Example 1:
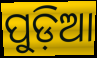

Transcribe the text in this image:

ପୁଡ଼ିଆ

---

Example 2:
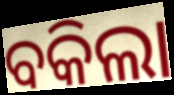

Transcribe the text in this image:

ବକିଲା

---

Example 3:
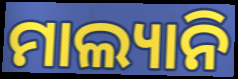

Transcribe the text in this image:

ମାଲ୍ୟାନି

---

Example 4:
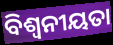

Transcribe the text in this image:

ବିଶ୍ୱନୀୟତା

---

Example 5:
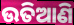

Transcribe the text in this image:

ଉତିଆଣି